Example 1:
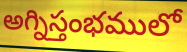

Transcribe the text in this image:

అగ్నిస్తంభములో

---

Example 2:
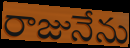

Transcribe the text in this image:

రాజునేను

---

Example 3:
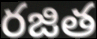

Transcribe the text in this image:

రజిత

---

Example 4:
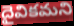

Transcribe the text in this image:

దైవికమని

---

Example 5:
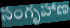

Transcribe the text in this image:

సంగృహాణ